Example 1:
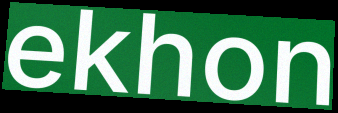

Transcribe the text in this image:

ekhon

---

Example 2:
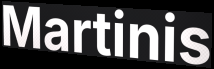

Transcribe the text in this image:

Martinis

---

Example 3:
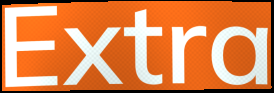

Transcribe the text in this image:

Extra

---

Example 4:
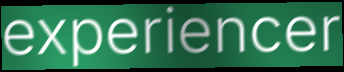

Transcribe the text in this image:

experiencer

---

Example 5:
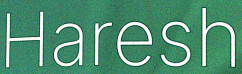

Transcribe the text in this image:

Haresh